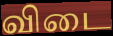
விடை